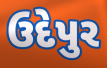
ઉદેપુર